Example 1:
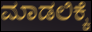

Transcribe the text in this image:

ಮಾಡಲಿಕ್ಕೆ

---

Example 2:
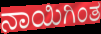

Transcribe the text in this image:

ನಾಯಿಗಿಂತ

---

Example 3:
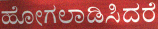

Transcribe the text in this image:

ಹೋಗಲಾಡಿಸಿದರೆ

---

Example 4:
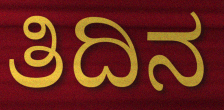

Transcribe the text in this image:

ತಿದಿನ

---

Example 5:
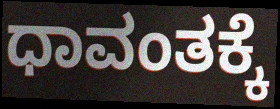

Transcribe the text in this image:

ಧಾವಂತಕ್ಕೆ